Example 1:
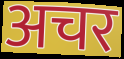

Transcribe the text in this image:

अचर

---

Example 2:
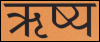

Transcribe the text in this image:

ऋष्य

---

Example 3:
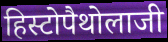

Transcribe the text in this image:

हिस्टोपैथोलाजी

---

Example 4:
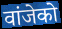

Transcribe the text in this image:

वांजेको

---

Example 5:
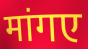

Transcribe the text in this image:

मांगए